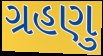
ગ્રહણુ